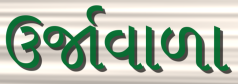
ઉર્જાવાળા